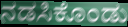
ನಡಸಿಕೊಂಡು